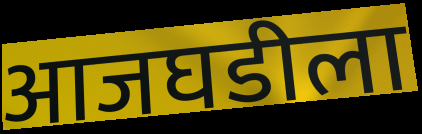
आजघडीला